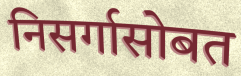
निसर्गासोबत